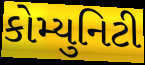
કોમ્યુનિટી